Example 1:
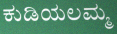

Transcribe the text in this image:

ಕುಡಿಯಲಮ್ಮ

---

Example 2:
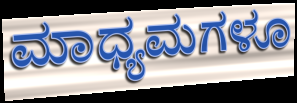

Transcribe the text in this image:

ಮಾಧ್ಯಮಗಳೂ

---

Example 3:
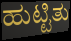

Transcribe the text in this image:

ಹುಟ್ಟಿತು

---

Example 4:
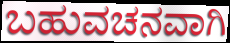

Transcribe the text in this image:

ಬಹುವಚನವಾಗಿ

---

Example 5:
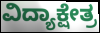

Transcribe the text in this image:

ವಿದ್ಯಾಕ್ಷೇತ್ರ